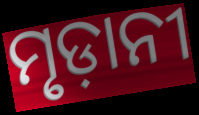
ମୃଡ଼ାନୀ